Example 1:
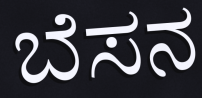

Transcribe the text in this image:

ಬೆಸನ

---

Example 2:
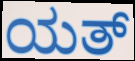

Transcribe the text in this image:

ಯತ್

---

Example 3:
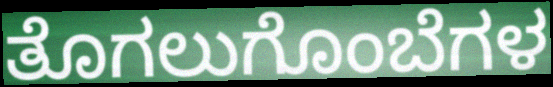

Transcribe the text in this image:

ತೊಗಲುಗೊಂಬೆಗಳ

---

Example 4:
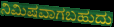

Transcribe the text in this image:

ನಿಮಿಷವಾಗಬಹುದು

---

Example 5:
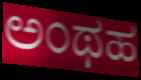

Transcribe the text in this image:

ಅಂಥಹ